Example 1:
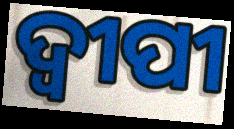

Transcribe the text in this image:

ଦ୍ୱୀପୀ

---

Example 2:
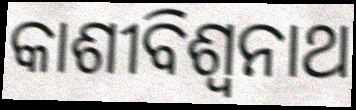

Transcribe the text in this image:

କାଶୀବିଶ୍ୱନାଥ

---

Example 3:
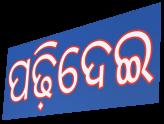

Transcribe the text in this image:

ପଢ଼ିଦେଇ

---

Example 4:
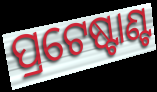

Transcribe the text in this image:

ପ୍ରଟେଷ୍ଟାଣ୍ଟ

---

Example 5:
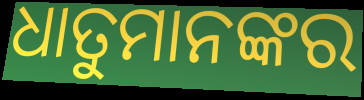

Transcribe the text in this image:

ଧାତୁମାନଙ୍କର